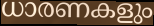
ധാരണകളും